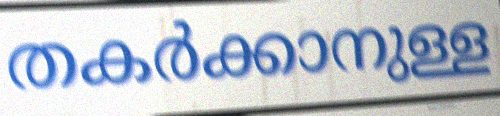
തകർക്കാനുള്ള